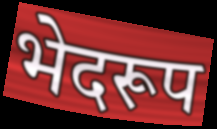
भेदरूप